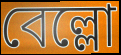
বেল্লো